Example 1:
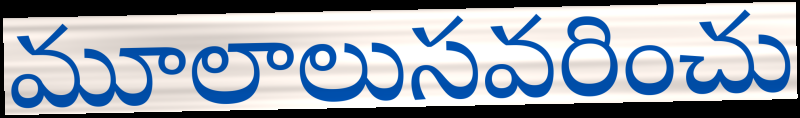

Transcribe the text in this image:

మూలాలుసవరించు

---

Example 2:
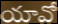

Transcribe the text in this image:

యావో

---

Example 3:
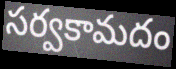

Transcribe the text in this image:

సర్వకామదం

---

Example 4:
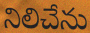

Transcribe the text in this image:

నిలిచేను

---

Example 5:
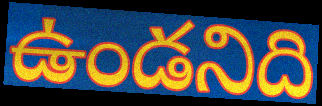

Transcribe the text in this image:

ఉండనిది